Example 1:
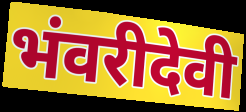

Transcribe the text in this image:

भंवरीदेवी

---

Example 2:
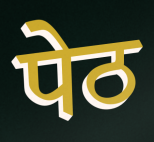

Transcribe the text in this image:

पेठ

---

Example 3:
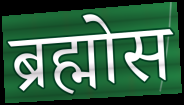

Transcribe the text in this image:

ब्रह्मोस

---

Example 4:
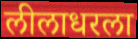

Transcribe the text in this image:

लीलाधरला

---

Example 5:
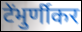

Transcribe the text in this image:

टेंभुर्णीकर